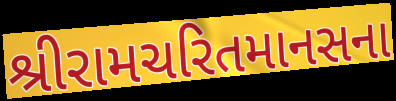
શ્રીરામચરિતમાનસના